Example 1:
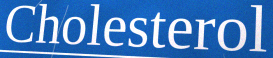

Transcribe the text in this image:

Cholesterol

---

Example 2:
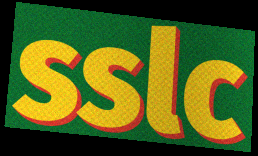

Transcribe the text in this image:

sslc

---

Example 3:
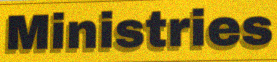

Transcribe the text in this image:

Ministries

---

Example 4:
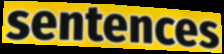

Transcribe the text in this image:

sentences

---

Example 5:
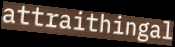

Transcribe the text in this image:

attraithingal